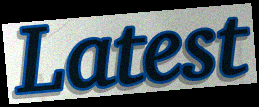
Latest